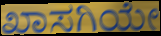
ಖಾಸಗಿಯೇ